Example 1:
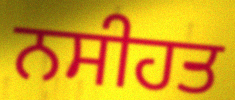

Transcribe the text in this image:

ਨਸੀਹਤ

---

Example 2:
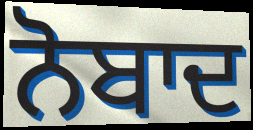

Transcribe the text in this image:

ਨੋਬਾਦ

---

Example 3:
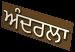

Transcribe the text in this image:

ਅੰਦਰਲਾ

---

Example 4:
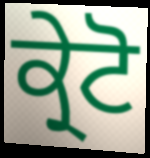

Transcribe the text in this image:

ਕ੍ਰੇਟੋ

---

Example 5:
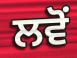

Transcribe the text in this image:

ਲਵੋਂ